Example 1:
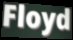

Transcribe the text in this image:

Floyd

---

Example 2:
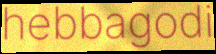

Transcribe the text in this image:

hebbagodi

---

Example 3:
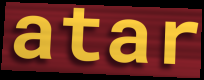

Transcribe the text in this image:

atar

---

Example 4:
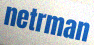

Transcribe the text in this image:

netrman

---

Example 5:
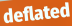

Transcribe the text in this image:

deflated